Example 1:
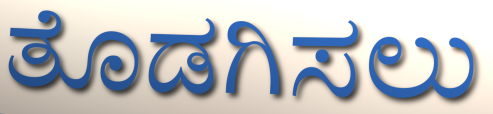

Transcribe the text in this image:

ತೊಡಗಿಸಲು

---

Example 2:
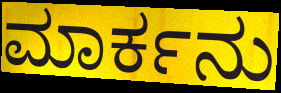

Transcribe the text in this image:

ಮಾರ್ಕನು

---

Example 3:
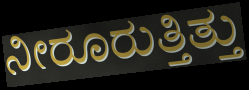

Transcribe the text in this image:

ನೀರೂರುತ್ತಿತ್ತು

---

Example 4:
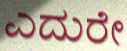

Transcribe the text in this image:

ಎದುರೇ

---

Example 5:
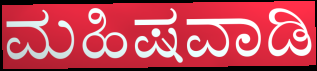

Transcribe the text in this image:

ಮಹಿಷವಾಡಿ